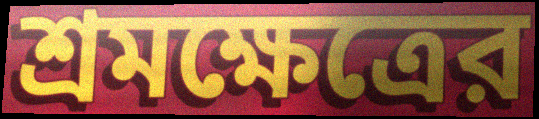
শ্রমক্ষেত্রের